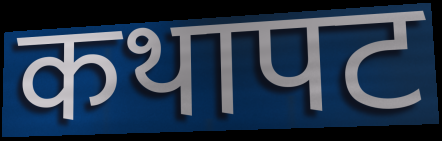
कथापट